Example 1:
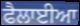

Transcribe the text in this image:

ਫੈਲਾਈਆ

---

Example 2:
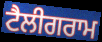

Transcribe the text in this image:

ਟੈਲੀਗਰਾਮ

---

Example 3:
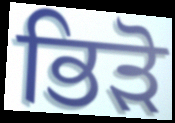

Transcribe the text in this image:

ਭਿੜੋ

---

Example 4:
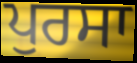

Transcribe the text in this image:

ਪੁਰਸਾ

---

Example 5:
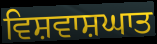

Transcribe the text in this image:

ਵਿਸ਼ਵਾਸ਼ਘਾਤ